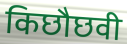
किछौछवी